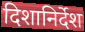
दिशानिर्देश